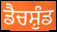
ਡੈਚਸ਼ੁੰਡ